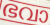
ഭവാ